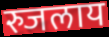
रुजलाय